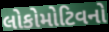
લોકોમોટિવનો